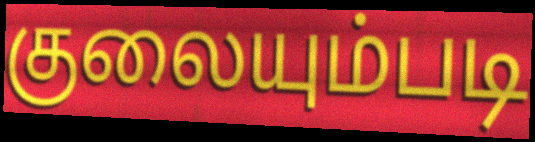
குலையும்படி